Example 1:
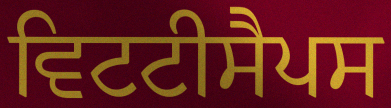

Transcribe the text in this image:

ਵਿਟਟੀਸੈਪਸ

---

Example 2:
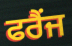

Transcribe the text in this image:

ਫਰੈਂਜ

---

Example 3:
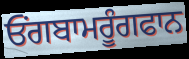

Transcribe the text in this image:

ਓਂਗਬਾਮਰੂੰਗਫਾਨ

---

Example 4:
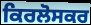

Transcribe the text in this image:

ਕਿਰਲੋਸਕਰ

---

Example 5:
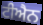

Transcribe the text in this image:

ਟੀਐਨ